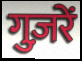
गुज़रें